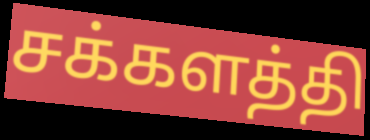
சக்களத்தி